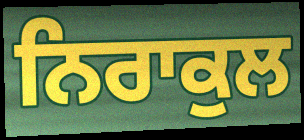
ਨਿਰਾਕੁਲ